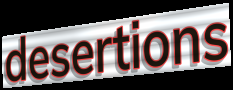
desertions